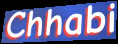
Chhabi